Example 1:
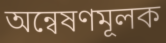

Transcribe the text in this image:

অন্বেষণমূলক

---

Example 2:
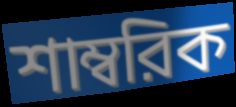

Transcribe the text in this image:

শাম্বরিক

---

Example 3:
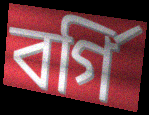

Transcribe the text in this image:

বর্গি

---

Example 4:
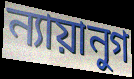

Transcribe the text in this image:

ন্যায়ানুগ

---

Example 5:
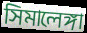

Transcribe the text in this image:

সিমালেঙ্গা